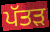
ਪੱਤਡ਼